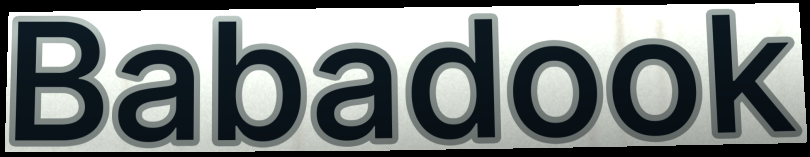
Babadook